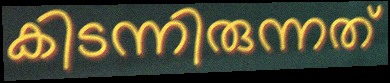
കിടന്നിരുന്നത്